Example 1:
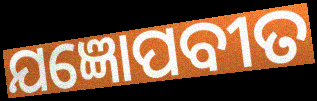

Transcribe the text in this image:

ଯଜ୍ଞୋପବୀତ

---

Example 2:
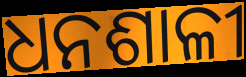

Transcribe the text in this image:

ଧନଶାଳୀ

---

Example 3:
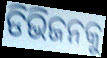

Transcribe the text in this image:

ଡିଭିଜନକୁ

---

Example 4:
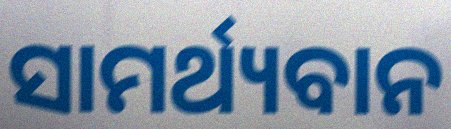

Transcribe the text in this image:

ସାମର୍ଥ୍ୟବାନ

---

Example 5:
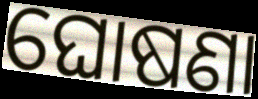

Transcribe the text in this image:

ଘୋଷଣା